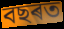
বছৰত